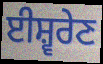
ਈਸ਼੍ਵਰੇਣ